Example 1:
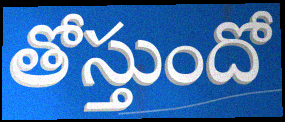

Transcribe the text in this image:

తోస్తుందో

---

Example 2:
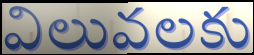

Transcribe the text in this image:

విలువలకు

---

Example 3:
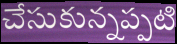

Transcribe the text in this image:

చేసుకున్నప్పటి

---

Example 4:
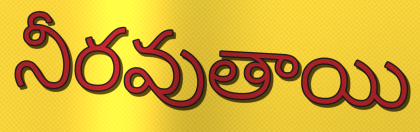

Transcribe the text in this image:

నీరవుతాయి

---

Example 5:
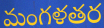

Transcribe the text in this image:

మంగళతర